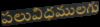
పలువిధములగు